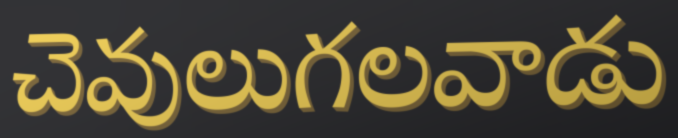
చెవులుగలవాడు